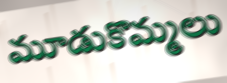
మూడుకొమ్మలు